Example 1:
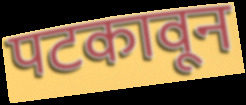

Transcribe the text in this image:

पटकावून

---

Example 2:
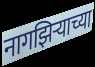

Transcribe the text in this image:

नागझिऱ्याच्या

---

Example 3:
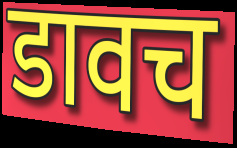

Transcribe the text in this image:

डावच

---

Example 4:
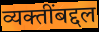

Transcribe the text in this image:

व्यक्तींबद्दल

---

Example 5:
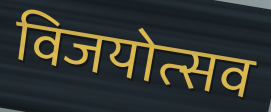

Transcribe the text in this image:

विजयोत्सव